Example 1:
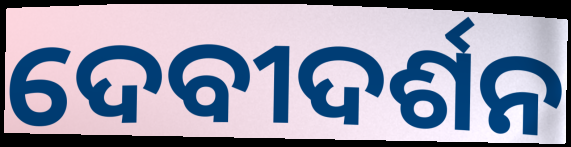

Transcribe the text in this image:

ଦେବୀଦର୍ଶନ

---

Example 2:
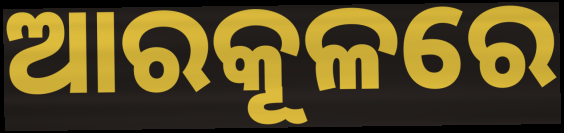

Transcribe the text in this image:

ଆରକୂଳରେ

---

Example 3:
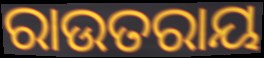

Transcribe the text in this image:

ରାଉତରାୟ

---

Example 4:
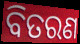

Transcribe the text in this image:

ବିତରଣ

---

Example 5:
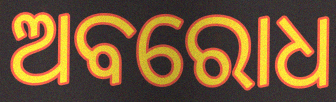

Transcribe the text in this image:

ଅବରୋଧ